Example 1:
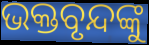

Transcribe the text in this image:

ଭକ୍ତବୃନ୍ଦଙ୍କୁ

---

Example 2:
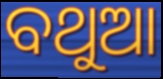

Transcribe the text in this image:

ବଥୁଆ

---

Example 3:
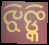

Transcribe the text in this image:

ଝିଙ୍କି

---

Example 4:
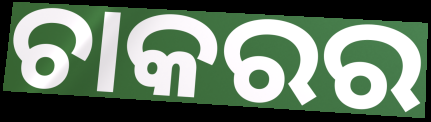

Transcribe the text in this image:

ଚାକରର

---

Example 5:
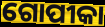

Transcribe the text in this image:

ଗୋପୀକା